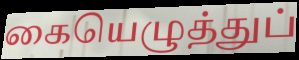
கையெழுத்துப்